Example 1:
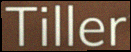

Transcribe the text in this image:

Tiller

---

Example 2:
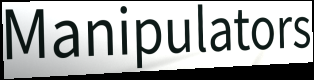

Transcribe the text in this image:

Manipulators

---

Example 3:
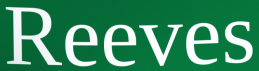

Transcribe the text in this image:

Reeves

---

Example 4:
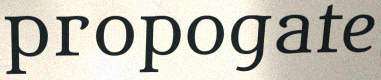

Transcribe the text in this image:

propogate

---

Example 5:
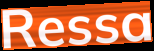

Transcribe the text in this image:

Ressa